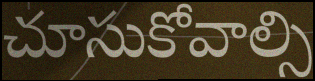
చూసుకోవాల్సి